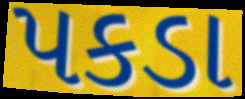
પકડા